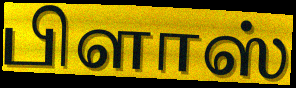
பிளாஸ்